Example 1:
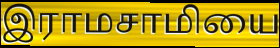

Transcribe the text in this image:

இராமசாமியை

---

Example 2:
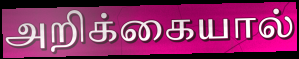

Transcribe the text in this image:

அறிக்கையால்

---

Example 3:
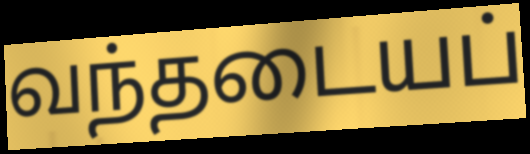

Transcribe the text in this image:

வந்தடையப்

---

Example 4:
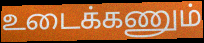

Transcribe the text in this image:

உடைக்கணும்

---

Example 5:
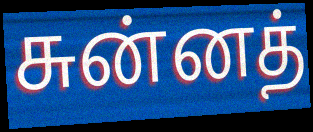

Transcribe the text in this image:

சுன்னத்